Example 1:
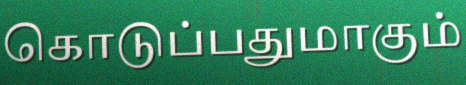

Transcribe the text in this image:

கொடுப்பதுமாகும்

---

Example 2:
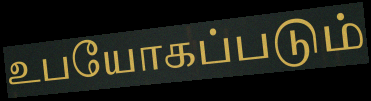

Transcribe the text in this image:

உபயோகப்படும்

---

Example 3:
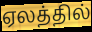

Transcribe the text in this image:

ஏலத்தில்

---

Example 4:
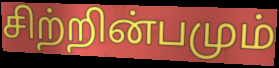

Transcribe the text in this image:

சிற்றின்பமும்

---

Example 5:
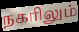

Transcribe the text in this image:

நகரிலும்